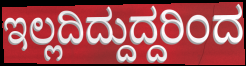
ಇಲ್ಲದಿದ್ದುದ್ದರಿಂದ